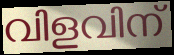
വിളവിന്